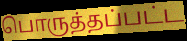
பொருத்தப்பட்ட